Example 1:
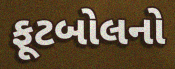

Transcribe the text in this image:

ફૂટબોલનો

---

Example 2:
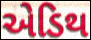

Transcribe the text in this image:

એડિથ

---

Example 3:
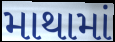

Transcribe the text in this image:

માથામાં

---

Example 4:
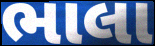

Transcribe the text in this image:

ભાલા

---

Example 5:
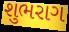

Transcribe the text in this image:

શુભરાગ